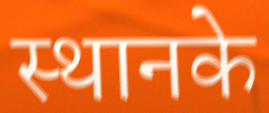
स्थानके